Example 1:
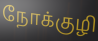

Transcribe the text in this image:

நோக்குழி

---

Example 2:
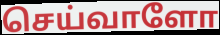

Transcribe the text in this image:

செய்வாளோ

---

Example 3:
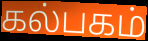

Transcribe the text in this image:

கல்பகம்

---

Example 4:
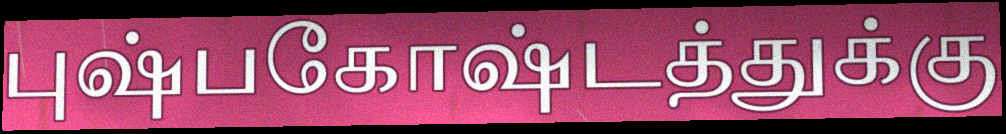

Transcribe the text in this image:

புஷ்பகோஷ்டத்துக்கு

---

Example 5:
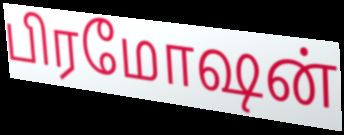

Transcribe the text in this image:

பிரமோஷன்